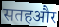
सतहऔर